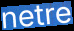
netre